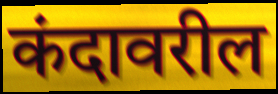
कंदावरील